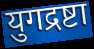
युगद्रष्टा